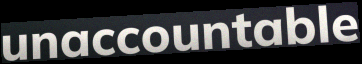
unaccountable